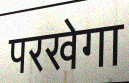
परखेगा